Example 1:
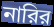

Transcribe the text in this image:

নারির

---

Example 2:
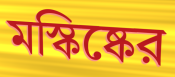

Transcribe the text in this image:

মস্কিষ্কের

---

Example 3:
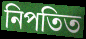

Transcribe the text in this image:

নিপতিত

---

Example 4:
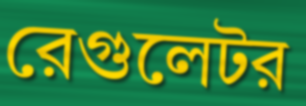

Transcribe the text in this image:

রেগুলেটর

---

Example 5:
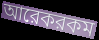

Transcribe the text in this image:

আরেকরকম